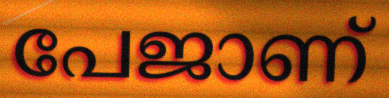
പേജാണ്